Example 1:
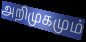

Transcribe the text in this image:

அறிமுகமும்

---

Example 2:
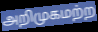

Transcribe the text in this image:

அறிமுகமற்ற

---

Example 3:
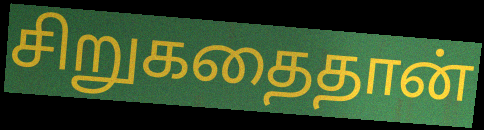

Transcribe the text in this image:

சிறுகதைதான்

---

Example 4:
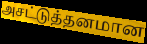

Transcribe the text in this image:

அசட்டுத்தனமான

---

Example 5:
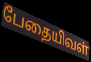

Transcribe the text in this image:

பேதையிவள்